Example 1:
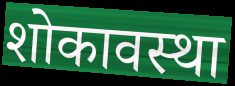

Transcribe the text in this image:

शोकावस्था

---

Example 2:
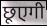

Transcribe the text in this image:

छूएगी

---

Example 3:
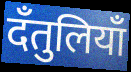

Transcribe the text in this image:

दँतुलियाँ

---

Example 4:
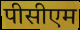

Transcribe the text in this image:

पीसीएम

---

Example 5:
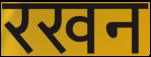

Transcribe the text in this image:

रखन